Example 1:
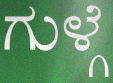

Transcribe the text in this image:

ಗುಳ್ಗೆ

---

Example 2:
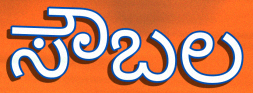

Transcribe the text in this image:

ಸೌಬಲ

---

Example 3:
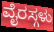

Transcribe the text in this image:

ವೈರಸ್ಗಳು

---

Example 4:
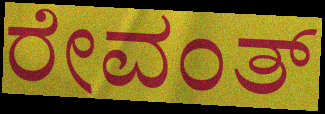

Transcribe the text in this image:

ರೇವಂತ್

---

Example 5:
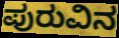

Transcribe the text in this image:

ಪುರುವಿನ